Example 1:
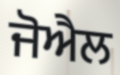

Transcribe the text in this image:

ਜੋਐਲ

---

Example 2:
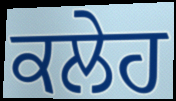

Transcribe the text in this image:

ਕਲੇਹ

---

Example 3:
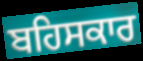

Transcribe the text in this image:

ਬਹਿਸਕਾਰ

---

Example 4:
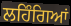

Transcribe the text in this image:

ਲਹਿੰਗਿਆਂ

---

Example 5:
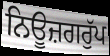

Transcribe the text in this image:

ਨਿਊਜ਼ਗਰੁੱਪ